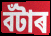
বঁটাৰ